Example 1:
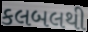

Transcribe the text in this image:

કલબલથી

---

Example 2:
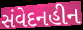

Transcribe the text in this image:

સંવેદનહીન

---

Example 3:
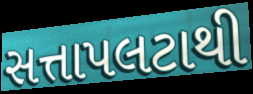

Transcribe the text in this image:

સત્તાપલટાથી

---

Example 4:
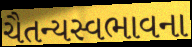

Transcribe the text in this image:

ચૈતન્યસ્વભાવના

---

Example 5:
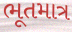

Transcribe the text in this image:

ભૂતમાત્ર